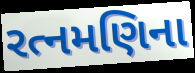
રત્નમણિના